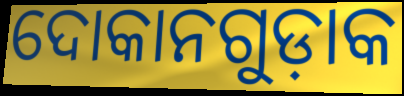
ଦୋକାନଗୁଡ଼ାକ